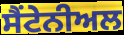
ਸੈਂਟੇਨੀਅਲ